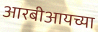
आरबीआयच्या